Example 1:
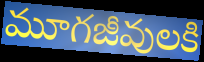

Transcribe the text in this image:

మూగజీవులకి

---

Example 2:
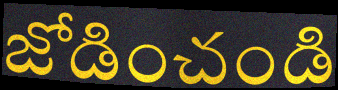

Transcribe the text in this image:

జోడించండి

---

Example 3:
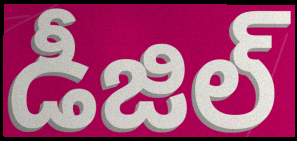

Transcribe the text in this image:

డీజిల్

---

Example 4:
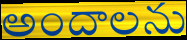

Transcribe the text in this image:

అందాలను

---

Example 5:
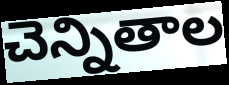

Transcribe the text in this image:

చెన్నితాల